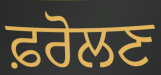
ਫ਼ਰੋਲਣ